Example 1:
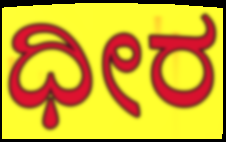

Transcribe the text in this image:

ಧೀರ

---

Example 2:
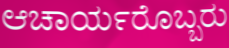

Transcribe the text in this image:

ಆಚಾರ್ಯರೊಬ್ಬರು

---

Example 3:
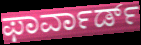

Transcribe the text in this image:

ಫಾರ್ವಾರ್ಡ್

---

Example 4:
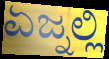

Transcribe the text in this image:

ಏಜ್ನಲ್ಲಿ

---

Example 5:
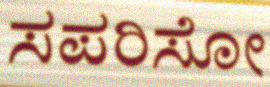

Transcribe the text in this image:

ಸಪರಿಸೋ